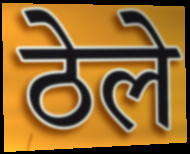
ठेले